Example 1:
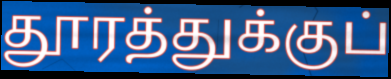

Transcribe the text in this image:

தூரத்துக்குப்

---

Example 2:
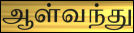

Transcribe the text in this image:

ஆள்வந்து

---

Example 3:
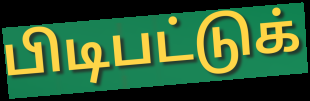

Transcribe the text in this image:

பிடிபட்டுக்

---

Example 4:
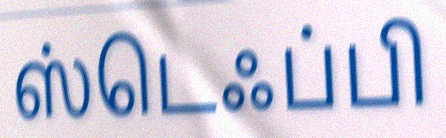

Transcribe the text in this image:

ஸ்டெஃப்பி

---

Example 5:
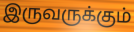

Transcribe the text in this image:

இருவருக்கும்